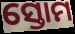
ସ୍ତୋମ